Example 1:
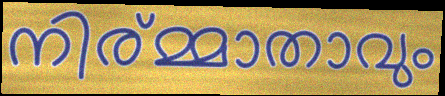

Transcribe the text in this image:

നിര്മ്മാതാവും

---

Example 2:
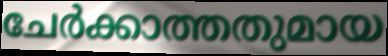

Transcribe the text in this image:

ചേർക്കാത്തതുമായ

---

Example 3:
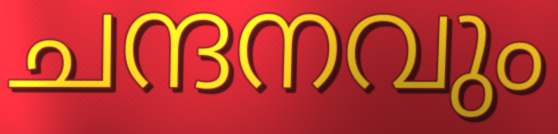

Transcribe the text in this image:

ചന്ദനവും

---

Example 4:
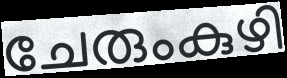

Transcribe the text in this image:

ചേരുംകുഴി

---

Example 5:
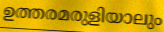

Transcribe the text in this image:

ഉത്തരമരുളിയാലും